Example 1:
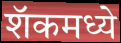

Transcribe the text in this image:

शॅकमध्ये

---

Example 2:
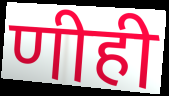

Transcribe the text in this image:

णीही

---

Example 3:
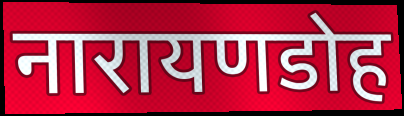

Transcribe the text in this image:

नारायणडोह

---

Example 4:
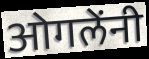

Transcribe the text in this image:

ओगलेंनी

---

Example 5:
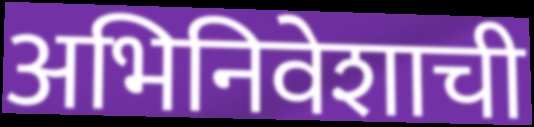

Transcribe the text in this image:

अभिनिवेशाची